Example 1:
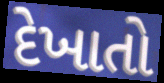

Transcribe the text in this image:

દેખાતો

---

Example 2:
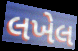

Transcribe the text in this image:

લખેલ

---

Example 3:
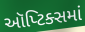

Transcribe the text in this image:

ઑપ્ટિક્સમાં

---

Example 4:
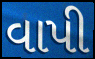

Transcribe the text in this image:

વાપી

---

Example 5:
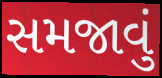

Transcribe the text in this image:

સમજાવું